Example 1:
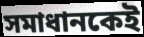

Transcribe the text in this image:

সমাধানকেই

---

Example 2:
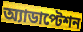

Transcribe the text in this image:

অ্যাডাপ্টেশন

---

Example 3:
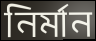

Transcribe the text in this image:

নির্মান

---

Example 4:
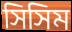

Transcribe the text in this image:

সিসিম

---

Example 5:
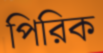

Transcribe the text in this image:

পিরিক